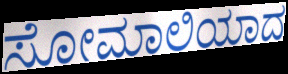
ಸೋಮಾಲಿಯಾದ